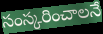
సంస్కరించాలనే